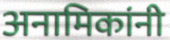
अनामिकांनी